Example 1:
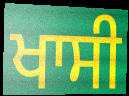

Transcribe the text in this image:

ਖਾਸੀ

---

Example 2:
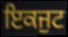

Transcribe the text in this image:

ਇਕਜੁਟ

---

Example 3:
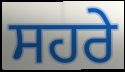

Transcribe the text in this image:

ਸਹਰੇ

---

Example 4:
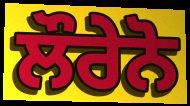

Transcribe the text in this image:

ਲੌਰੇਨੋ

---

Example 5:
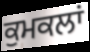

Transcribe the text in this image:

ਕੁਮਕਲਾਂ